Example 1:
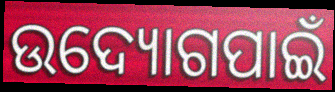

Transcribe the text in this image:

ଉଦ୍ୟୋଗପାଇଁ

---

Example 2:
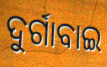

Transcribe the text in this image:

ଦୁର୍ଗାବାଇ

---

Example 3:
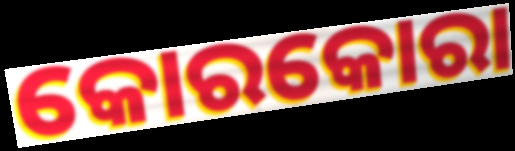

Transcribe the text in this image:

କୋରକୋରା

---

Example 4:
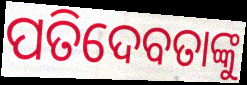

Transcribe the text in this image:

ପତିଦେବତାଙ୍କୁ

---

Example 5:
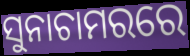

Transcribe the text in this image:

ସୁନାଚାମରରେ